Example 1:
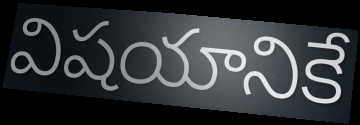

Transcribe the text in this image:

విషయానికే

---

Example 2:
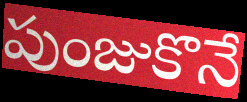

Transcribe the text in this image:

పుంజుకొనే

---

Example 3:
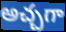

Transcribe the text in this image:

అచ్చగా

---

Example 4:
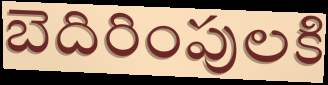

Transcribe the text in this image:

బెదిరింపులకి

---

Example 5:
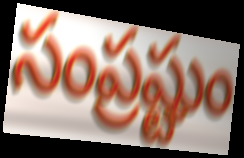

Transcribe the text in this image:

సంప్రష్టుం